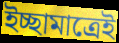
ইচ্ছামাত্রেই